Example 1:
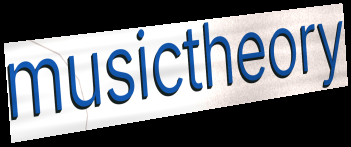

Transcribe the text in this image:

musictheory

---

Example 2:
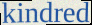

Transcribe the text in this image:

kindred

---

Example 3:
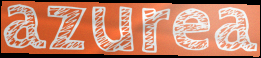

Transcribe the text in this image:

azurea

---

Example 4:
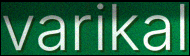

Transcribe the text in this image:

varikal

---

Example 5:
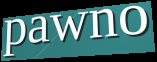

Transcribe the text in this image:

pawno